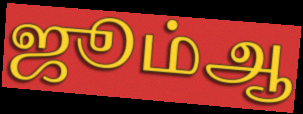
ஜூம்ஆ